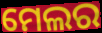
ମେଲର